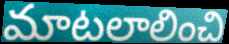
మాటలాలించి